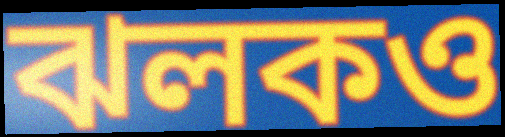
ঝলকও